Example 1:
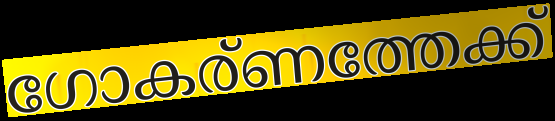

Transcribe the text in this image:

ഗോകര്ണത്തേക്ക്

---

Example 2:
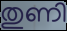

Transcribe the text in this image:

തുണി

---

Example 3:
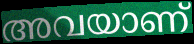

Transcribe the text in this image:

അവയാണ്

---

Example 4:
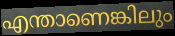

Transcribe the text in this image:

എന്താണെങ്കിലും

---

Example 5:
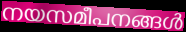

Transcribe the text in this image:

നയസമീപനങ്ങൾ